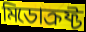
মিডোক্রফ্ট